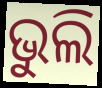
ଭୁଲି